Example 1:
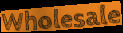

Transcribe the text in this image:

Wholesale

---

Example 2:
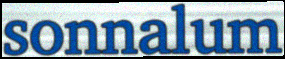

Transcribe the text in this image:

sonnalum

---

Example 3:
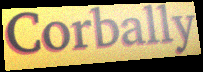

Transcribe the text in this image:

Corbally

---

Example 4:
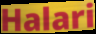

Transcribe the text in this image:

Halari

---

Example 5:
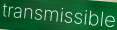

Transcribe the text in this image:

transmissible